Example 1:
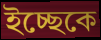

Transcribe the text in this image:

ইচ্ছেকে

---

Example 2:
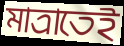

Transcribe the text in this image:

মাত্রাতেই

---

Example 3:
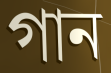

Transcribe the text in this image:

গান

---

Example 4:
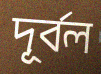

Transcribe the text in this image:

দূর্বল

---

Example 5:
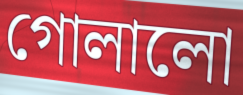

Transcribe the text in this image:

গোলালো